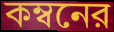
কম্বনের